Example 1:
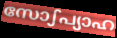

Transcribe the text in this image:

സോഽപ്യാഹ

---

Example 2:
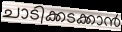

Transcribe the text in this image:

ചാടിക്കടക്കാൻ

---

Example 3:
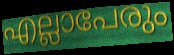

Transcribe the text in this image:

എല്ലാപേരും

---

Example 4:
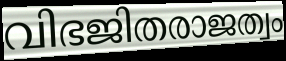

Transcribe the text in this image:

വിഭജിതരാജത്വം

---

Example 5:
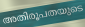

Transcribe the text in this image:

അതിരൂപതയുടെ